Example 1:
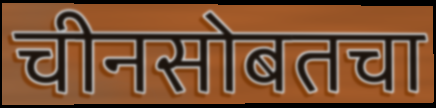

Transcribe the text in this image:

चीनसोबतचा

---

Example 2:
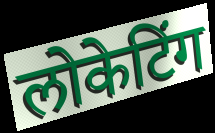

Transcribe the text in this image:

लोकेटिंग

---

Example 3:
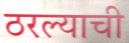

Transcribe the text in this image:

ठरल्याची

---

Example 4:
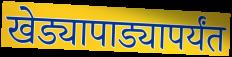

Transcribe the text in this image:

खेड्यापाड्यापर्यंत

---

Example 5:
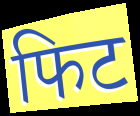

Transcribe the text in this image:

फिट